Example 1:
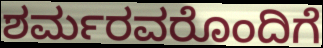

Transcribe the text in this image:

ಶರ್ಮರವರೊಂದಿಗೆ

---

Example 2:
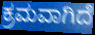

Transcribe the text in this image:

ಕ್ರಮವಾಗಿದೆ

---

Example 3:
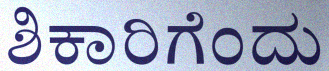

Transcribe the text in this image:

ಶಿಕಾರಿಗೆಂದು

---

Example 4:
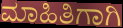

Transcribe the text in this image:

ಮಾಹಿತಿಗಾಗಿ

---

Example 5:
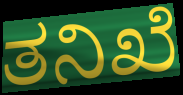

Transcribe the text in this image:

ತನಿಖೆ